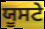
ਯੂਸਟੇ